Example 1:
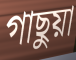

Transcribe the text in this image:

গাছুয়া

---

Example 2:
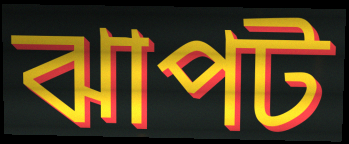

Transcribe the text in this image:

ঝাপট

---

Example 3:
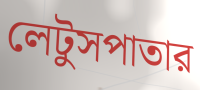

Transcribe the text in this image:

লেটুসপাতার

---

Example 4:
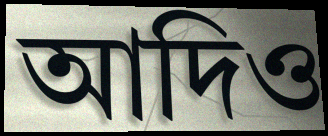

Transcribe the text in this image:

আদিও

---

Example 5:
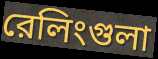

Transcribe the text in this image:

রেলিংগুলা